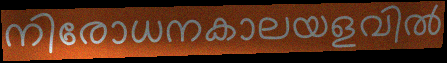
നിരോധനകാലയളവിൽ